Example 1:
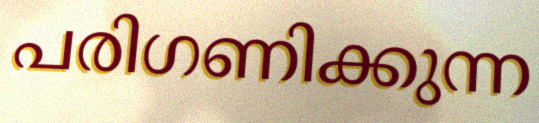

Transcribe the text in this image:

പരിഗണിക്കുന്ന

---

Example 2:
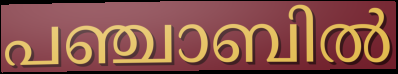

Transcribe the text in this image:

പഞ്ചാബിൽ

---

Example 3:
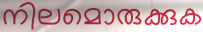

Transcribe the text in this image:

നിലമൊരുക്കുക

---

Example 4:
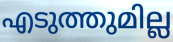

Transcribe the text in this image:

എടുത്തുമില്ല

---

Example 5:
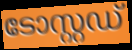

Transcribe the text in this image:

ടോസ്റ്റഡ്